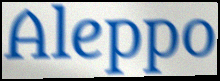
Aleppo